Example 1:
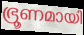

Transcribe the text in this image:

ഭ്രൂണമായി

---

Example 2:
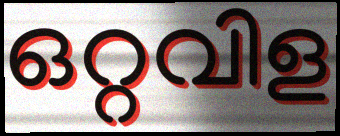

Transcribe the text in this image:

ഒറ്റവിള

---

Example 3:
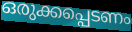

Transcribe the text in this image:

ഒരുക്കപ്പെടണം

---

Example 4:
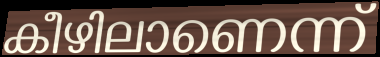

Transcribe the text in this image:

കീഴിലാണെന്ന്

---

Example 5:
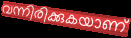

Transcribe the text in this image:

വന്നിരിക്കുകയാണ്